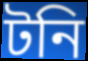
টনি